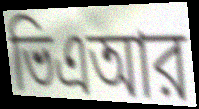
ভিএআর